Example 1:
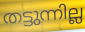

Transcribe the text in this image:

തട്ടുന്നില്ല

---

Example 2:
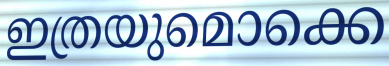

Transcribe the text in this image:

ഇത്രയുമൊക്കെ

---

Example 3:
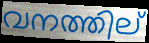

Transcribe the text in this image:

വനത്തില്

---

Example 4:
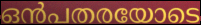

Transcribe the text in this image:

ഒൻപതരയോടെ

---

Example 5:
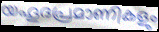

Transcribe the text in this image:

യഹൂദപ്രമാണികളും